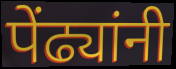
पेंढ्यांनी